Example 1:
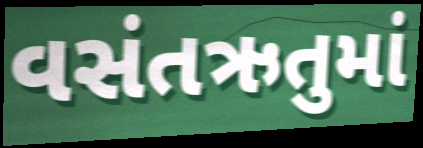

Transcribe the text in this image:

વસંતઋતુમાં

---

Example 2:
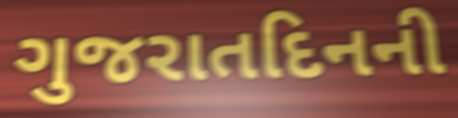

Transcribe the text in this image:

ગુજરાતદિનની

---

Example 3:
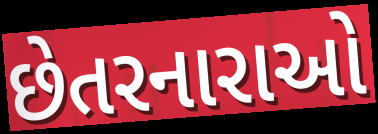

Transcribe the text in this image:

છેતરનારાઓ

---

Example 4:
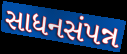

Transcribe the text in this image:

સાધનસંપન્ન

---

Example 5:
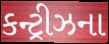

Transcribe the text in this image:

કન્ટ્રીઝના